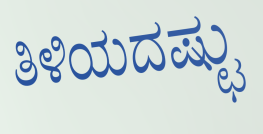
ತಿಳಿಯದಷ್ಟು